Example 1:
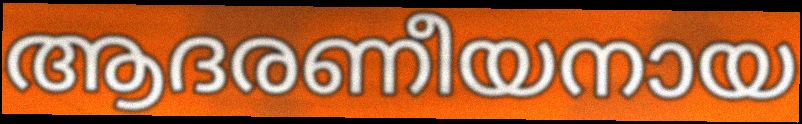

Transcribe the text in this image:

ആദരണീയനായ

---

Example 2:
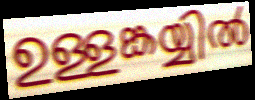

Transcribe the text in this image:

ഉള്ളങ്കയ്യിൽ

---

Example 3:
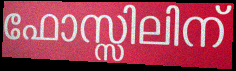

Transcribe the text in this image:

ഫോസ്സിലിന്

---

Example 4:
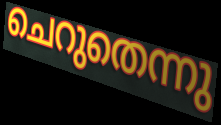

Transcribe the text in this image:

ചെറുതെന്നു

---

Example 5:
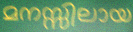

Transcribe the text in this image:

മനസ്സിലായ